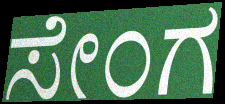
ಸೇಂಗ